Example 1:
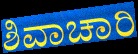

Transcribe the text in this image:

ಶಿವಾಚಾರಿ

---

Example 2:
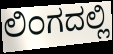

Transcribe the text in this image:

ಲಿಂಗದಲ್ಲಿ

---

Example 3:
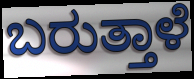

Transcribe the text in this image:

ಬರುತ್ತಾಳೆ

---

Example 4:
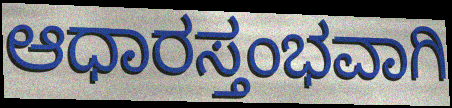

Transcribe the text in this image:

ಆಧಾರಸ್ತಂಭವಾಗಿ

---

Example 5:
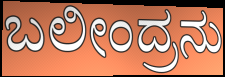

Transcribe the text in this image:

ಬಲೀಂದ್ರನು